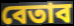
বেতাব